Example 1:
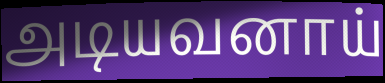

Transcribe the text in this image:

அடியவனாய்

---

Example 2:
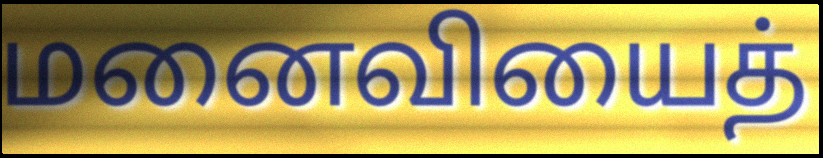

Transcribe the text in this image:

மனைவியைத்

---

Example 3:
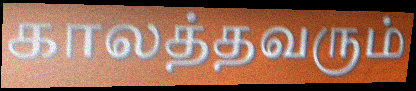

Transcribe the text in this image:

காலத்தவரும்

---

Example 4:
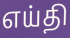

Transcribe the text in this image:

எய்தி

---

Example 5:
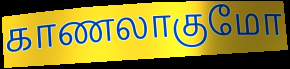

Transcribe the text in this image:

காணலாகுமோ